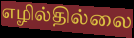
எழில்தில்லை